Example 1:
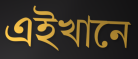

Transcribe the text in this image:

এইখানে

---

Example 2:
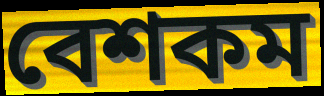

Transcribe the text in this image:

বেশকম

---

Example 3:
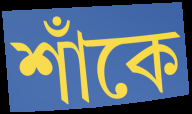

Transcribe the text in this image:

শাঁকে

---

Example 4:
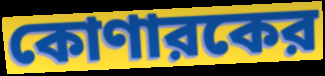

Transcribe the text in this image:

কোণারকের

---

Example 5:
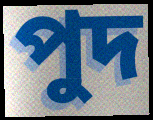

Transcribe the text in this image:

পুদ